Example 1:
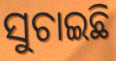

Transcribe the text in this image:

ସୁଚାଇଛି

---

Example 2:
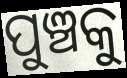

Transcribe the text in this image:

ପୁଞ୍ଚକୁ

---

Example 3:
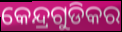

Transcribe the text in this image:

କେନ୍ଦ୍ରଗୁଡିକର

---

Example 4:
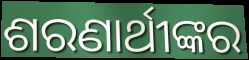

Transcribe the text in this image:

ଶରଣାର୍ଥୀଙ୍କର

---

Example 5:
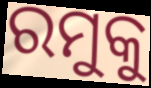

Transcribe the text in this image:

ରମୁକୁ